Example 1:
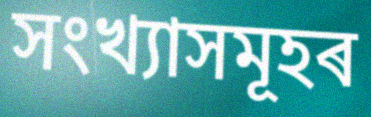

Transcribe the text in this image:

সংখ্যাসমূহৰ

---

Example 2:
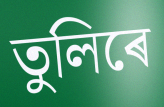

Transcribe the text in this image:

তুলিৰে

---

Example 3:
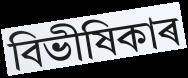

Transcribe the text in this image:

বিভীষিকাৰ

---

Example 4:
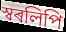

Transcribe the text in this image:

স্বৰলিপি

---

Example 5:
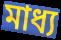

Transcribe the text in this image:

মাধ্য